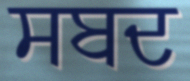
ਸਬਦ